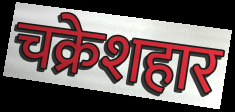
चक्रेशहार